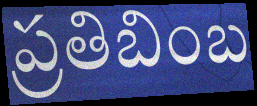
ప్రతిబింబ